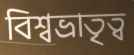
বিশ্বভ্রাতৃত্ব